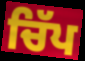
ਚਿੱਪ